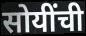
सोयींची